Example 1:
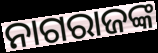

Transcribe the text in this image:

ନାଗରାଜଙ୍କ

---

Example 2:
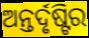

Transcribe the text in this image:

ଅନ୍ତର୍ଦୃଷ୍ଟିର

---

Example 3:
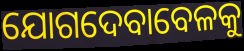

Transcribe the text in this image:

ଯୋଗଦେବାବେଳକୁ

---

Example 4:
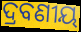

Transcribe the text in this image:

ଦ୍ରବଣୀୟ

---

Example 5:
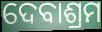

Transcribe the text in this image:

ଦେବାଶ୍ରମ